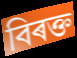
বিৰক্ত